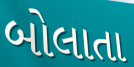
બોલાતા